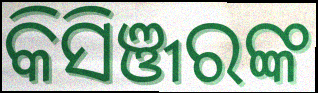
କିସିଞ୍ଜରଙ୍କ